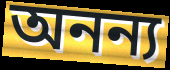
অনন্য